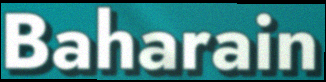
Baharain